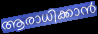
ആരാധിക്കാൻ